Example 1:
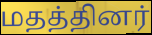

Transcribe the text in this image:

மதத்தினர்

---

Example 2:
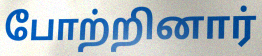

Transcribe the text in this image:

போற்றினார்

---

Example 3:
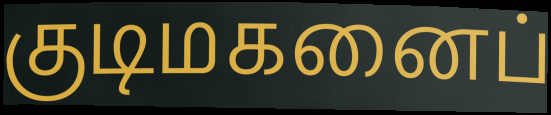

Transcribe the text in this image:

குடிமகனைப்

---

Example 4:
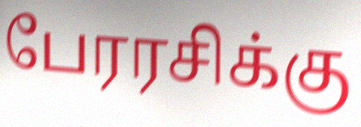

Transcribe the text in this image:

பேரரசிக்கு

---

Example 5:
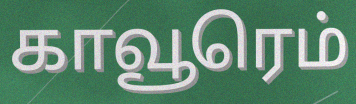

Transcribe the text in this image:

காவூரெம்